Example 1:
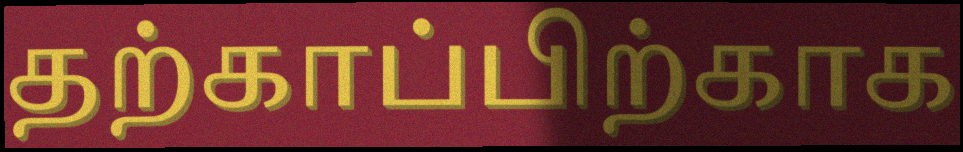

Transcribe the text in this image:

தற்காப்பிற்காக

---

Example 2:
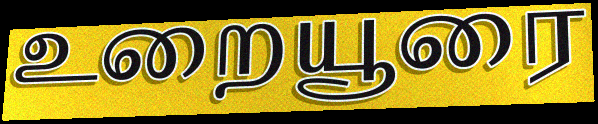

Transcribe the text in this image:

உறையூரை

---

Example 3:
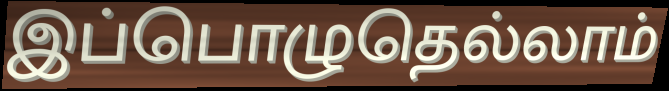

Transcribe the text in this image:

இப்பொழுதெல்லாம்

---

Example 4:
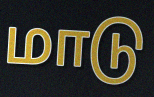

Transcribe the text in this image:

மாடு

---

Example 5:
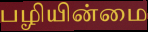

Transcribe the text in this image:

பழியின்மை